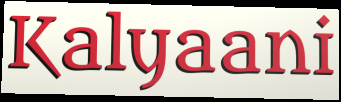
Kalyaani